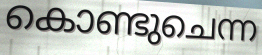
കൊണ്ടുചെന്ന